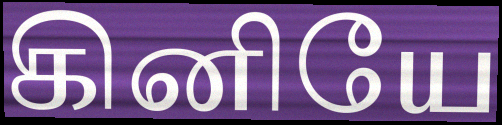
கினியே